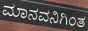
ಮಾನವನಿಗಿಂತ